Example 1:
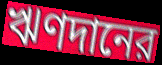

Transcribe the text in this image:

ঋণদানের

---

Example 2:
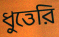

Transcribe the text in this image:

ধুত্তেরি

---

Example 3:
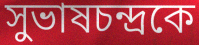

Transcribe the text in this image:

সুভাষচন্দ্রকে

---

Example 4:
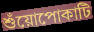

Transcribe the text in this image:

শুঁয়োপোকাটি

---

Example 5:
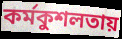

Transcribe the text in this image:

কর্মকুশলতায়